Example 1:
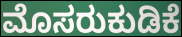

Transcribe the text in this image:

ಮೊಸರುಕುಡಿಕೆ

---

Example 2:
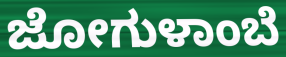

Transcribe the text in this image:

ಜೋಗುಳಾಂಬೆ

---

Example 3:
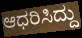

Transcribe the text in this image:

ಆಧರಿಸಿದ್ದು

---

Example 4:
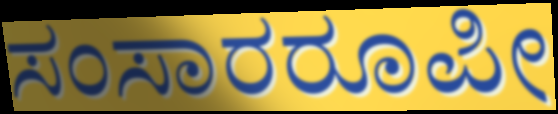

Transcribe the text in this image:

ಸಂಸಾರರೂಪೀ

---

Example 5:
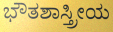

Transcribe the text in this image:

ಭೌತಶಾಸ್ತ್ರೀಯ